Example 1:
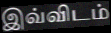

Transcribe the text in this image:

இவ்விடம்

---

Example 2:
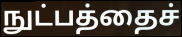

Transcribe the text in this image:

நுட்பத்தைச்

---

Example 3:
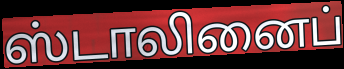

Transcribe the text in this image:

ஸ்டாலினைப்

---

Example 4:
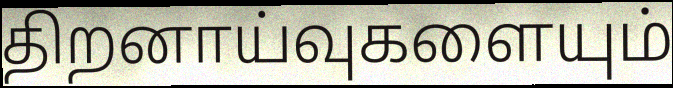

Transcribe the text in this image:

திறனாய்வுகளையும்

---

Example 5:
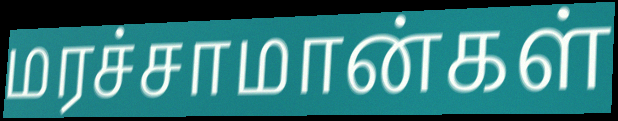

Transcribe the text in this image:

மரச்சாமான்கள்